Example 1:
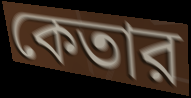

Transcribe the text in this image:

কেতার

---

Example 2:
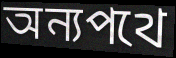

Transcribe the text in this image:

অন্যপথে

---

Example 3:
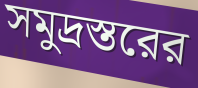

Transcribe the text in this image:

সমুদ্রস্তরের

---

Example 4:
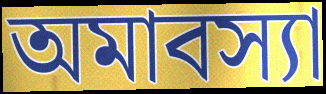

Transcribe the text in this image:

অমাবস্যা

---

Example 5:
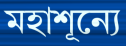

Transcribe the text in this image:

মহাশূন্যে